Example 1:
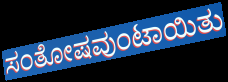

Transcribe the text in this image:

ಸಂತೋಷವುಂಟಾಯಿತು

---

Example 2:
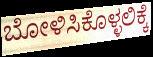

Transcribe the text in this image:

ಬೋಳಿಸಿಕೊಳ್ಳಲಿಕ್ಕೆ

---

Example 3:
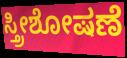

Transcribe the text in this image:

ಸ್ತ್ರೀಶೋಷಣೆ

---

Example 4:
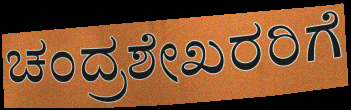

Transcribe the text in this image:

ಚಂದ್ರಶೇಖರರಿಗೆ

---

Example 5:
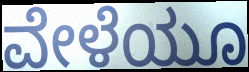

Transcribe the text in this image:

ವೇಳೆಯೂ